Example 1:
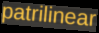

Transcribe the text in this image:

patrilinear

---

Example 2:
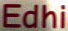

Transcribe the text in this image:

Edhi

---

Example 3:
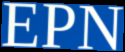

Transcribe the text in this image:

EPN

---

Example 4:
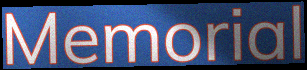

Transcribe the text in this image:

Memorial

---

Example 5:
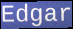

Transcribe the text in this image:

Edgar